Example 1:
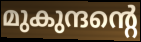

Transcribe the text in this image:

മുകുന്ദന്റെ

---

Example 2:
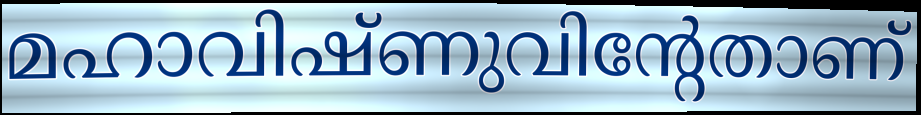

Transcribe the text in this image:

മഹാവിഷ്ണുവിന്റേതാണ്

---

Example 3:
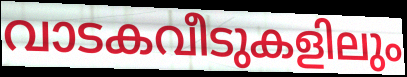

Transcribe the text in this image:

വാടകവീടുകളിലും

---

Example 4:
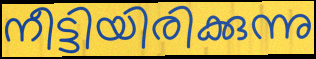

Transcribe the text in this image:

നീട്ടിയിരിക്കുന്നു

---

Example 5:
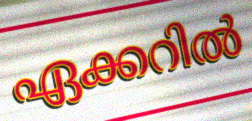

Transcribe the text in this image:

ഏക്കറിൽ